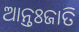
ଆନ୍ତଃଜାତି